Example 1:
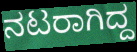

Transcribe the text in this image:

ನಟರಾಗಿದ್ದ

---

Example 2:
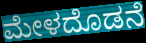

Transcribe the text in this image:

ಮೇಳದೊಡನೆ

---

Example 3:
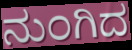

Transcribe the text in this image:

ನುಂಗಿದ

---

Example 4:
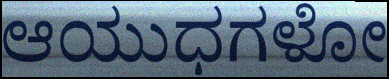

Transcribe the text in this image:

ಆಯುಧಗಳೋ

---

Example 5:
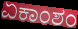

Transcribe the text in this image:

ಏಕಾಂಶಂ